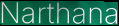
Narthana